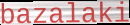
bazalaki